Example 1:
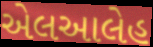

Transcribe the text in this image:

એલઆલેહ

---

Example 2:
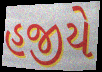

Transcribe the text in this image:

હજીયે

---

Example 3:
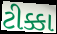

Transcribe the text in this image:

ટીક્કા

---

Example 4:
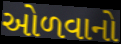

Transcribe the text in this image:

ઓળવાનો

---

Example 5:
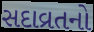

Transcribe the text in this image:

સદાવ્રતનો